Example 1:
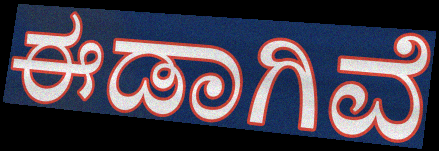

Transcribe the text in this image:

ಈಡಾಗಿವೆ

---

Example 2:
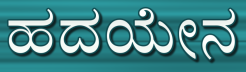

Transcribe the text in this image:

ಹದಯೇನ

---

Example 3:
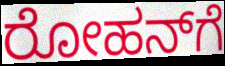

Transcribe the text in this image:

ರೋಹನ್‌ಗೆ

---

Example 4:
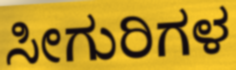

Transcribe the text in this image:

ಸೀಗುರಿಗಳ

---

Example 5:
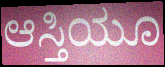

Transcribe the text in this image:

ಆಸ್ತಿಯೂ